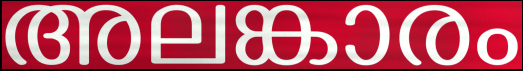
അലങ്കാരം